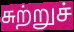
சுற்றுச்